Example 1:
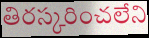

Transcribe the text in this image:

తిరస్కరించలేని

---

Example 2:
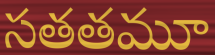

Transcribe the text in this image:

సతతమూ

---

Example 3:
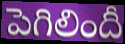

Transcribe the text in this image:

పెగిలిందీ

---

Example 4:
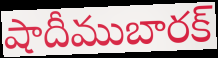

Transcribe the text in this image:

షాదీముబారక్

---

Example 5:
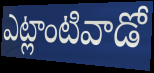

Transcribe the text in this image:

ఎట్లాంటివాడో